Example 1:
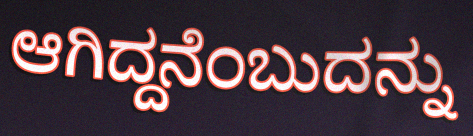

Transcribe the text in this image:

ಆಗಿದ್ದನೆಂಬುದನ್ನು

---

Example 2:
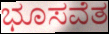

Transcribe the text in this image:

ಭೂಸವೆತ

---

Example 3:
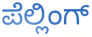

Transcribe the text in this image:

ಪೆಲ್ಲಿಂಗ್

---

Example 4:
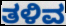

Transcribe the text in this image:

ತಳಿವ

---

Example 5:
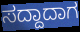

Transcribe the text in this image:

ಸದ್ದಾದಾಗ